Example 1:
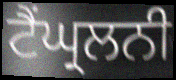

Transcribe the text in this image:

ਟੈਂਘ੍ਰਲਨੀ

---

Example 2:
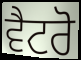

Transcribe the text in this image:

ਵੈਟਰੋ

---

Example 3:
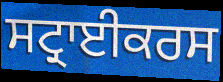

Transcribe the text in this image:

ਸਟ੍ਰਾਈਕਰਸ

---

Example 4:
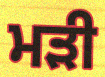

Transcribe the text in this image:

ਮੜੀ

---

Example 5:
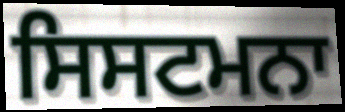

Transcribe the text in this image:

ਸਿਸਟਮਨਾ